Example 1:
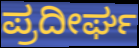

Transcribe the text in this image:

ಪ್ರದೀರ್ಘ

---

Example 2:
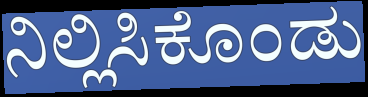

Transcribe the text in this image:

ನಿಲ್ಲಿಸಿಕೊಂಡು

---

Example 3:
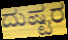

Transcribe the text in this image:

ದುಷ್ಟರ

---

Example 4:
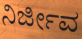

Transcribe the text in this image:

ನಿರ್ಜೀವ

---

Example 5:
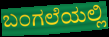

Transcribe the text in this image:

ಬಂಗಲೆಯಲ್ಲಿ